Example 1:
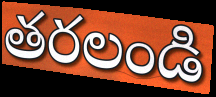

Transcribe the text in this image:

తరలండి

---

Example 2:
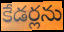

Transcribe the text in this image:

కేడర్లను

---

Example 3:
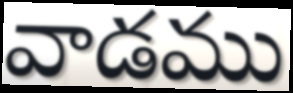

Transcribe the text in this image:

వాడము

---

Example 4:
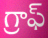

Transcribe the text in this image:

గ్రాఫ్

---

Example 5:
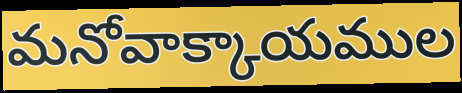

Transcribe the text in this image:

మనోవాక్కాయముల